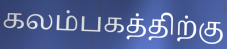
கலம்பகத்திற்கு